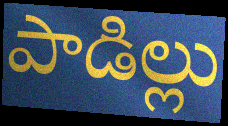
పాడిల్లు